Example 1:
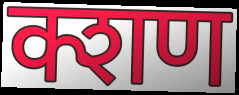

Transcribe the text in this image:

क्शण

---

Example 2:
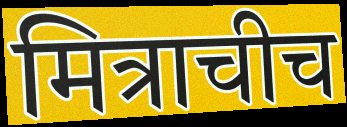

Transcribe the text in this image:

मित्राचीच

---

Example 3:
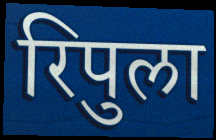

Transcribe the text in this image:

रिपुला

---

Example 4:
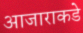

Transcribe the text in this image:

आजाराकडे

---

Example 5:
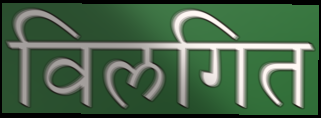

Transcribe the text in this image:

विलगित